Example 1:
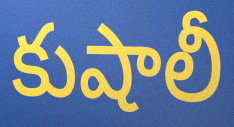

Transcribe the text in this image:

కుషాలీ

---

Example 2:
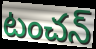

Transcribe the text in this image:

టంచన్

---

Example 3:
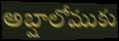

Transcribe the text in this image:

అబ్షాలోముకు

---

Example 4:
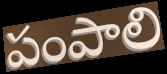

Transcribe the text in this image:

పంపాలి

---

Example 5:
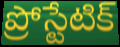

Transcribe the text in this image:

ప్రోస్టేటిక్